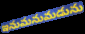
ఇనుమనుమడును